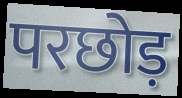
परछोड़